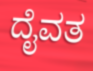
ದೈವತ